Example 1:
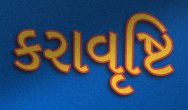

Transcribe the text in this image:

કરાવૃષ્ટિ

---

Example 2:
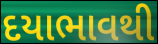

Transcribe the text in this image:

દયાભાવથી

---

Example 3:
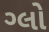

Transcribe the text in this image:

ગ્લો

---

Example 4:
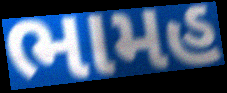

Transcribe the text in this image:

ભામહ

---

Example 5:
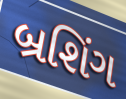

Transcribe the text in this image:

બ્રશિંગ